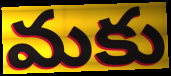
మకు